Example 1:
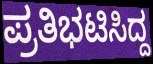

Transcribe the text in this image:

ಪ್ರತಿಭಟಿಸಿದ್ದ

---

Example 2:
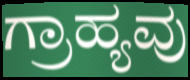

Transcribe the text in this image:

ಗ್ರಾಹ್ಯವು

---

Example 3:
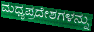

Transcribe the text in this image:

ಮಧ್ಯಪ್ರದೇಶಗಳನ್ನು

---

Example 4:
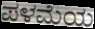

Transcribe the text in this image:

ಪಳಮೆಯ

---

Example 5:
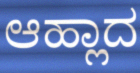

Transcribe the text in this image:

ಆಹ್ಲಾದ